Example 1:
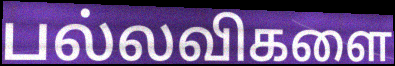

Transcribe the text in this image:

பல்லவிகளை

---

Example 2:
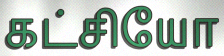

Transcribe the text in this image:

கட்சியோ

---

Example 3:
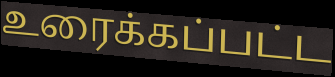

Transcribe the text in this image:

உரைக்கப்பட்ட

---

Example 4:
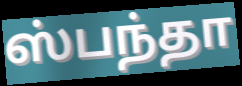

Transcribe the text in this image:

ஸ்பந்தா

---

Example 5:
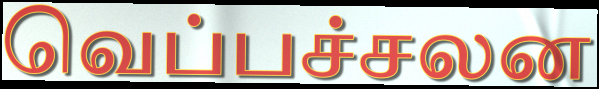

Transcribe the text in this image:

வெப்பச்சலன